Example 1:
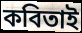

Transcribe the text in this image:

কবিতাই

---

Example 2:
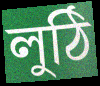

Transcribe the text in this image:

লুঠি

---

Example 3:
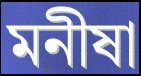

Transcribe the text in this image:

মনীষা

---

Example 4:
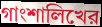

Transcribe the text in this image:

গাংশালিখের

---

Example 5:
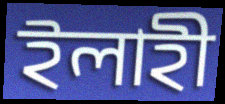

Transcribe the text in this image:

ইলাহী